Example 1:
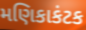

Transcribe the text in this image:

મણિકાકંટક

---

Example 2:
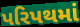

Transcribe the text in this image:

પરિપથમાં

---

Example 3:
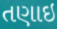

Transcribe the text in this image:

તણાઇ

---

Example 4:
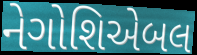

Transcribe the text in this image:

નેગોશિએબલ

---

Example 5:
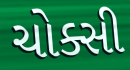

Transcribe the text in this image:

ચોક્સી